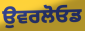
ਉਵਰਲੋਓਡ